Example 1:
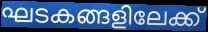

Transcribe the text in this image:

ഘടകങ്ങളിലേക്ക്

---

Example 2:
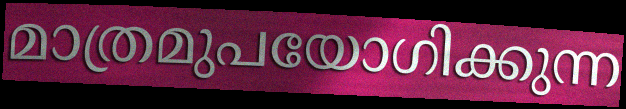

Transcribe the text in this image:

മാത്രമുപയോഗിക്കുന്ന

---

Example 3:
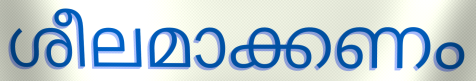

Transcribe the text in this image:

ശീലമാക്കണം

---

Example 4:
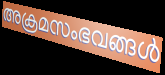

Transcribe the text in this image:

അക്രമസംഭവങ്ങൾ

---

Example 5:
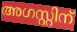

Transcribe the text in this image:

അഗസ്റ്റിന്